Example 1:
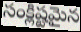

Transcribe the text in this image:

సంక్లిష్టమైన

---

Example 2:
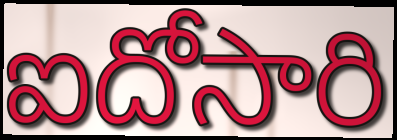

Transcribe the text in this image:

ఐదోసారి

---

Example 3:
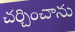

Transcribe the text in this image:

చర్చించాను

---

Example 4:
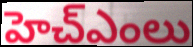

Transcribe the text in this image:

హెచ్ఎంలు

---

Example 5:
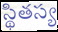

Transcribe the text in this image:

స్థితస్య